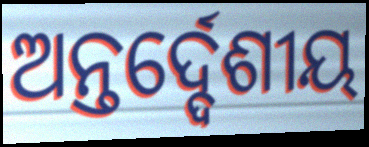
ଅନ୍ତର୍ଦ୍ଦେଶୀୟ